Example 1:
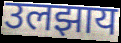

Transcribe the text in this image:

उलझाय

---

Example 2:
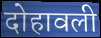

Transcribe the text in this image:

दोहावली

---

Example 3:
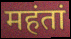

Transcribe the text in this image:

महंतां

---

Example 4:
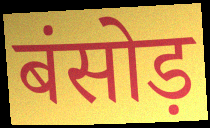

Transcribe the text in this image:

बंसोड़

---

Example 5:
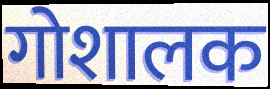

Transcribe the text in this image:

गोशालक